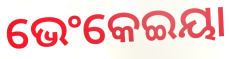
ଭେଂକେଇୟା